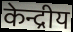
केन्‍द्रीय